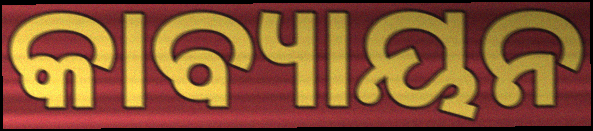
କାବ୍ୟାୟନ